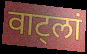
वाट्लां